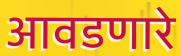
आवडणारे